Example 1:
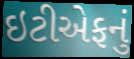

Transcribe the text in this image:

ઇટીએફનું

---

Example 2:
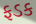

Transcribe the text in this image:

ફડક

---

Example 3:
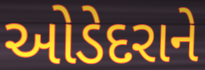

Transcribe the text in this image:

ઓડેદરાને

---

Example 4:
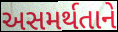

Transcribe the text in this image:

અસમર્થતાને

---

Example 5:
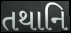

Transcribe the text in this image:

તથાનિ